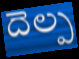
దెల్ప